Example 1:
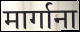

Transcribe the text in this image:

मार्गाना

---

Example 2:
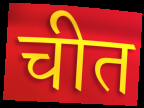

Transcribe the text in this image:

चीत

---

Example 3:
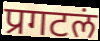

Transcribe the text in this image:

प्रगटलं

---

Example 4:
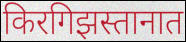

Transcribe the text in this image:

किरगिझस्तानात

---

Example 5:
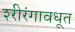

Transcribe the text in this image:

श्रीरंगावधूत